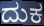
ದುಕ